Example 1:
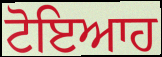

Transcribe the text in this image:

ਟੋਇਆਹ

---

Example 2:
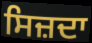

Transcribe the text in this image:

ਸਿਜ਼ਦਾ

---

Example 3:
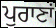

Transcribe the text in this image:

ਪੁਰਾਣਾਂ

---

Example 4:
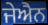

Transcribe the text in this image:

ਜੇਐਨ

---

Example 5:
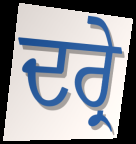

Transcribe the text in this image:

ਦਰ੍ਰੇ